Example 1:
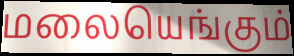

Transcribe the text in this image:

மலையெங்கும்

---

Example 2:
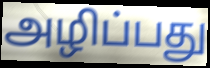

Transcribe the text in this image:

அழிப்பது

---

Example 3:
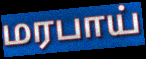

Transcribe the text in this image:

மரபாய்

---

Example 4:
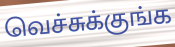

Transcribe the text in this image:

வெச்சுக்குங்க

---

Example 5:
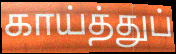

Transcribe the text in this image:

காய்த்துப்